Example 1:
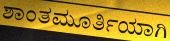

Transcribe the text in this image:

ಶಾಂತಮೂರ್ತಿಯಾಗಿ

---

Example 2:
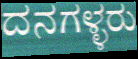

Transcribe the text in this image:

ದನಗಳ್ಳರು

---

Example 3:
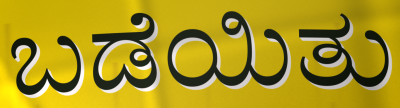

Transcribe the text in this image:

ಬಡೆಯಿತು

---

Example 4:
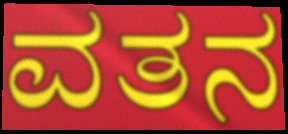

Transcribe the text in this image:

ವತನ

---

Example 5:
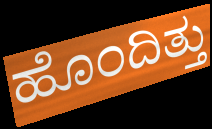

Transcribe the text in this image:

ಹೊಂದಿತ್ತು